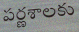
పర్ణశాలకు